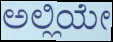
ಅಲ್ಲಿಯೇ